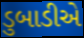
ડુબાડીએ